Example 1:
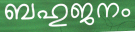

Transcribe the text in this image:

ബഹുജനം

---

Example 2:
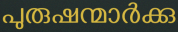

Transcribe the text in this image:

പുരുഷന്മാർക്കു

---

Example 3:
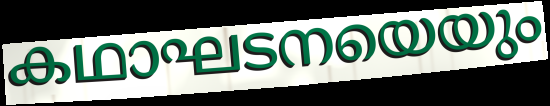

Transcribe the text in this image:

കഥാഘടനയെയും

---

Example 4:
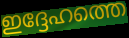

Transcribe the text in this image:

ഇദ്ദേഹത്തെ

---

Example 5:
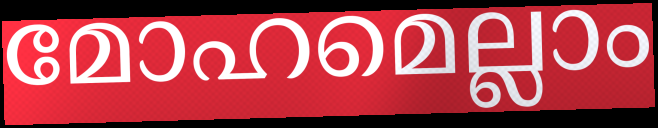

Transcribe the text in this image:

മോഹമെല്ലാം